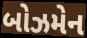
બોઝમેન